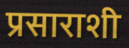
प्रसाराशी